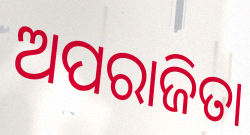
ଅପରାଜିତା